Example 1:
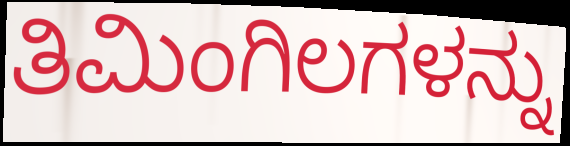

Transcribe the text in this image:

ತಿಮಿಂಗಿಲಗಳನ್ನು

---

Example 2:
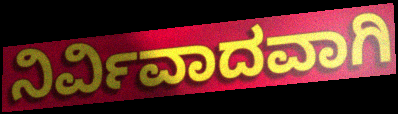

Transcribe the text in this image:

ನಿರ್ವಿವಾದವಾಗಿ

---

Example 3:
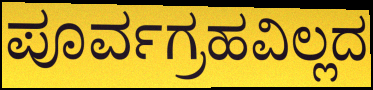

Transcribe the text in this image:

ಪೂರ್ವಗ್ರಹವಿಲ್ಲದ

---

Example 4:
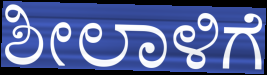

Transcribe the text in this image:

ಶೀಲಾಳಿಗೆ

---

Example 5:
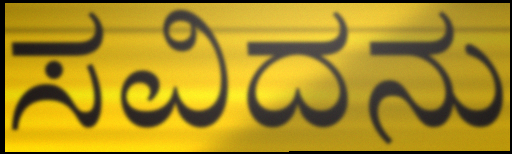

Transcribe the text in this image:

ಸವಿದನು